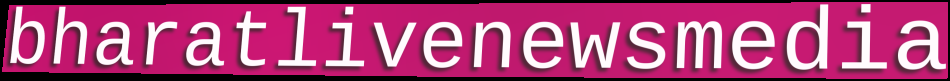
bharatlivenewsmedia